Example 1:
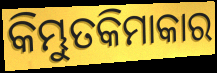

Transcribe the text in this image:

କିମ୍ଭୁତକିମାକାର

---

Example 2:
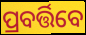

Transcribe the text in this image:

ପ୍ରବର୍ତ୍ତିବେ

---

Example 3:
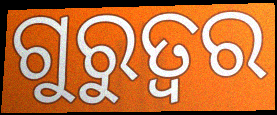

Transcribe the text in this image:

ଗୁରୁତ୍ବର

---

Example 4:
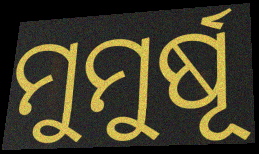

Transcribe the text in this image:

ମୁମୁର୍ଷୂ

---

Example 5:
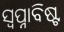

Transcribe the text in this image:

ସ୍ୱପ୍ନାବିଷ୍ଟ